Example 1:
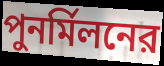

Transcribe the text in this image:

পুনর্মিলনের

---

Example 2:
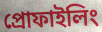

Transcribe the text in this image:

প্রোফাইলিং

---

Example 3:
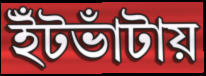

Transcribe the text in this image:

ইঁটভাঁটায়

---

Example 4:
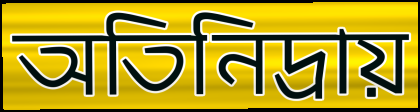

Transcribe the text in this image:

অতিনিদ্রায়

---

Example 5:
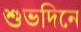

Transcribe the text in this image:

শুভদিনে